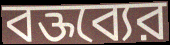
বক্তব্যের